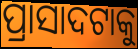
ପ୍ରାସାଦଟାକୁ